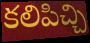
కలిపిచ్చి